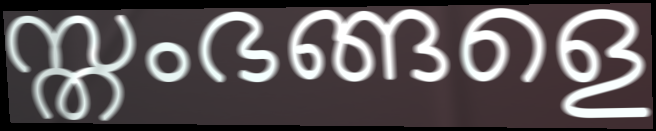
സ്തംഭങ്ങളെ